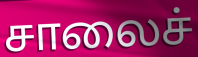
சாலைச்